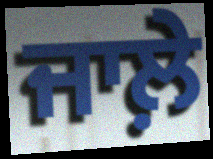
ਜਾਲ਼ੇ